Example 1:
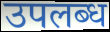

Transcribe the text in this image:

उपलब्‍ध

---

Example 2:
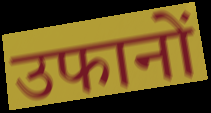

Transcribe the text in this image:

उफानों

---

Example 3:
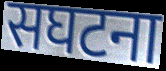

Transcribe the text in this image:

सघटना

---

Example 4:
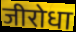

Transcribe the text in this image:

जीरोधा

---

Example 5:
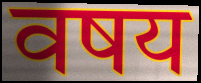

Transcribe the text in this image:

वषय